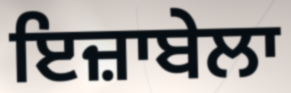
ਇਜ਼ਾਬੇਲਾ